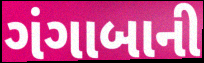
ગંગાબાની